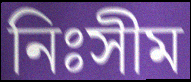
নিঃসীম